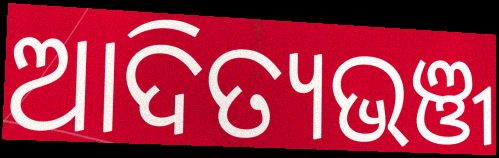
ଆଦିତ୍ୟଭଞ୍ଜ